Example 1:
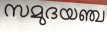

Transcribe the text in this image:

സമുദയഞ്ച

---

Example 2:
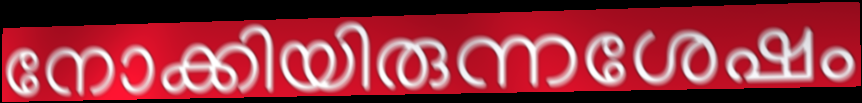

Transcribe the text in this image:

നോക്കിയിരുന്നശേഷം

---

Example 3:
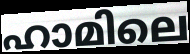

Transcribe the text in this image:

ഹാമിലെ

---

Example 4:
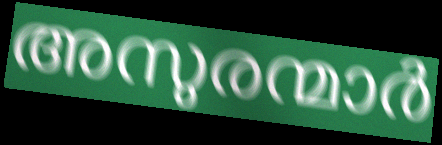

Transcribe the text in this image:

അസുരന്മാർ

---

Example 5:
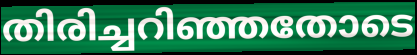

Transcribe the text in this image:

തിരിച്ചറിഞ്ഞതോടെ